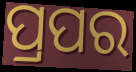
ପ୍ରପର